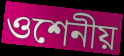
ওশেনীয়